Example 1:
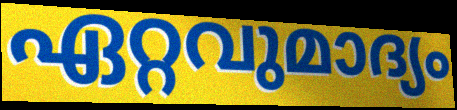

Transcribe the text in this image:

ഏറ്റവുമാദ്യം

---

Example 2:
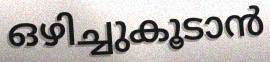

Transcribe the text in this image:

ഒഴിച്ചുകൂടാൻ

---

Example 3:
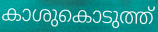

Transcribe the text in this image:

കാശുകൊടുത്ത്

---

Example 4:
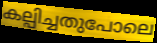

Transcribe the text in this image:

കല്പിച്ചതുപോലെ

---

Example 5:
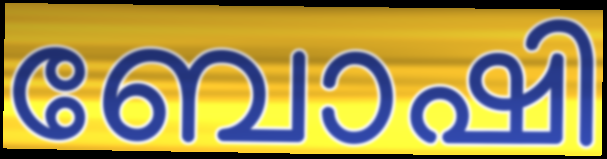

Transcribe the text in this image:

ബോഷി